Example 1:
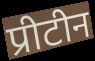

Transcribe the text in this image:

प्रीटीन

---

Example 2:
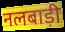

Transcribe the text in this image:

नलबाड़ी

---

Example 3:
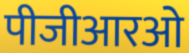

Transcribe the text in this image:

पीजीआरओ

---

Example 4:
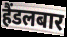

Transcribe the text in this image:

हैंडलबार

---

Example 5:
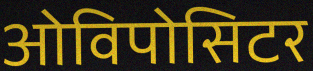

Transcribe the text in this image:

ओविपोसिटर